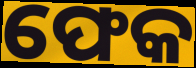
ଫେକ